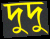
দুদু